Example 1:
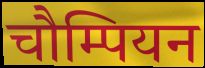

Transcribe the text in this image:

चौम्पियन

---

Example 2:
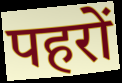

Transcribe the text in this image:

पहरों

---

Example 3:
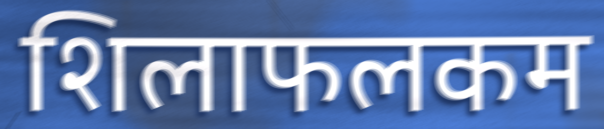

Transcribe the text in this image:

शिलाफलकम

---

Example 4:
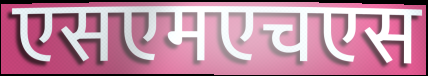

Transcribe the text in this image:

एसएमएचएस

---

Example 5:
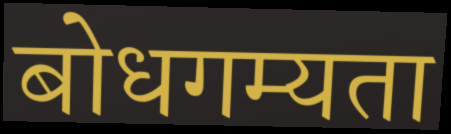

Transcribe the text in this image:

बोधगम्यता